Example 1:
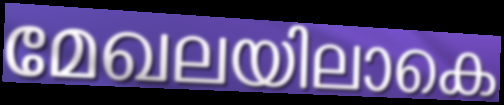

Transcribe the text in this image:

മേഖലയിലാകെ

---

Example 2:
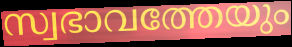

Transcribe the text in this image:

സ്വഭാവത്തേയും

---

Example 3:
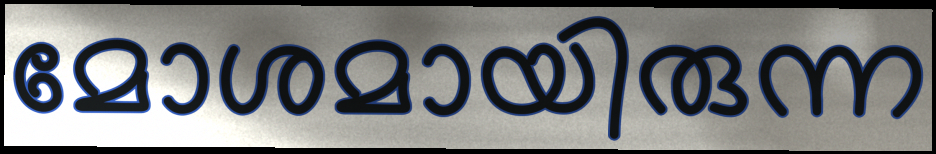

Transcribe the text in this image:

മോശമായിരുന്ന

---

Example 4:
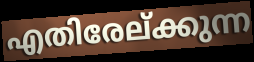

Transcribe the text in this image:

എതിരേല്ക്കുന്ന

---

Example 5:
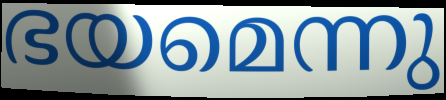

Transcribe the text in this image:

ഭയമെന്നു